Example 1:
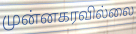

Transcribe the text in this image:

முன்னகரவில்லை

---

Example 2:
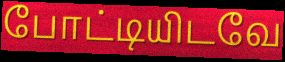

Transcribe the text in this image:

போட்டியிடவே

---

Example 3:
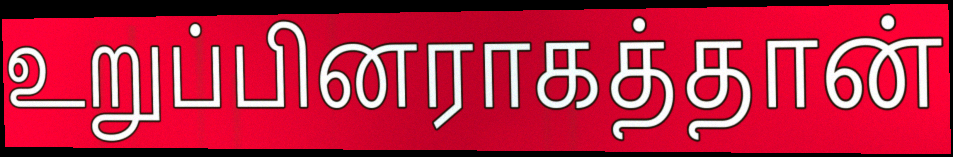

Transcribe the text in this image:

உறுப்பினராகத்தான்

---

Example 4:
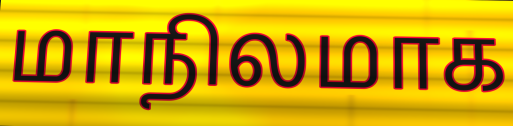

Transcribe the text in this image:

மாநிலமாக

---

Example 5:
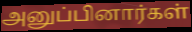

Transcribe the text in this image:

அனுப்பினார்கள்